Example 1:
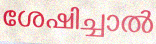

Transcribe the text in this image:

ശേഷിച്ചാൽ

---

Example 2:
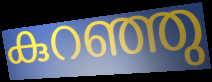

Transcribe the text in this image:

കുറഞ്ഞു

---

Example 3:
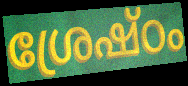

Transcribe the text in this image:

ശ്രേഷ്ഠം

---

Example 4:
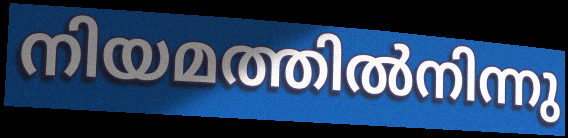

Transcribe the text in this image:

നിയമത്തിൽനിന്നു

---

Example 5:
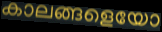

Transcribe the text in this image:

കാലങ്ങളെയോ